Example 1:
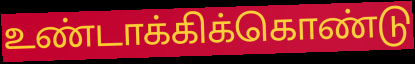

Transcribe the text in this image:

உண்டாக்கிக்கொண்டு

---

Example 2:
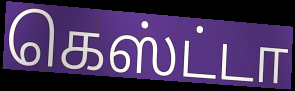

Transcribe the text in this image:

கெஸ்ட்டா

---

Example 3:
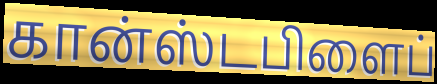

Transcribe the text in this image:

கான்ஸ்டபிளைப்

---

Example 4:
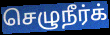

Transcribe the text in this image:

செழுநீர்க்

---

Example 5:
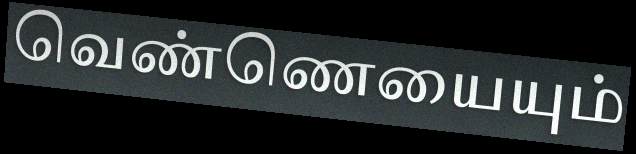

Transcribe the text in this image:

வெண்ணெயையும்